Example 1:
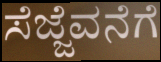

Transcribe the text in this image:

ಸೆಜ್ಜೆವನೆಗೆ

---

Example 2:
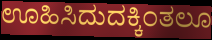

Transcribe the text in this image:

ಊಹಿಸಿದುದಕ್ಕಿಂತಲೂ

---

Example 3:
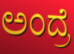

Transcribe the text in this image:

ಅಂದ್ರೆ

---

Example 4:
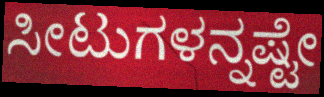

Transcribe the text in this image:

ಸೀಟುಗಳನ್ನಷ್ಟೇ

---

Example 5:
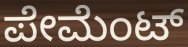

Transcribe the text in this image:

ಪೇಮೆಂಟ್